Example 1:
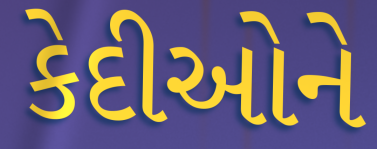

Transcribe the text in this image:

કેદીઓને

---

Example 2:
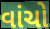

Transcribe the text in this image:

વાંચો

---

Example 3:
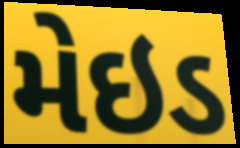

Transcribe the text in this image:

મેઇડ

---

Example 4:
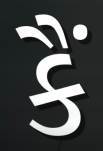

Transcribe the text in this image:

કૈં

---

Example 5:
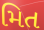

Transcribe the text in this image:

મિત